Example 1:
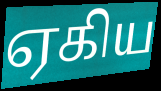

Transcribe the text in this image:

ஏகிய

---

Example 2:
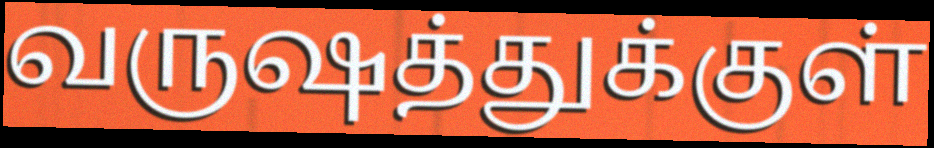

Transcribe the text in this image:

வருஷத்துக்குள்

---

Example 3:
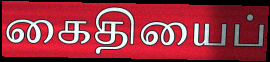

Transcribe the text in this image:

கைதியைப்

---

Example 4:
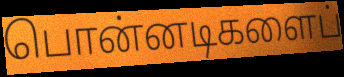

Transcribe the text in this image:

பொன்னடிகளைப்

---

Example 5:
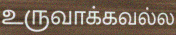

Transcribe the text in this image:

உருவாக்கவல்ல